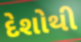
દેશોથી